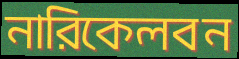
নারিকেলবন